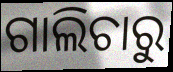
ଗାଲିଚାରୁ